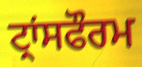
ਟ੍ਰਾਂਸਫੌਰਮ